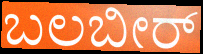
ಬಲಬೀರ್